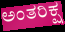
ಅಂತರಿಕ್ಷ